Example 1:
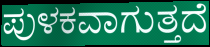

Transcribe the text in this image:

ಪುಳಕವಾಗುತ್ತದೆ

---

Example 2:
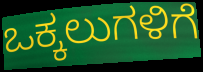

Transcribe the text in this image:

ಒಕ್ಕಲುಗಳಿಗೆ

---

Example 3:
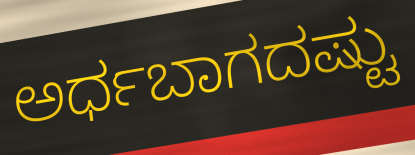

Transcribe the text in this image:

ಅರ್ಧಬಾಗದಷ್ಟು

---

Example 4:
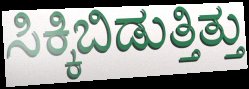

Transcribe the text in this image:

ಸಿಕ್ಕಿಬಿಡುತ್ತಿತ್ತು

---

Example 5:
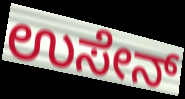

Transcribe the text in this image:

ಉಸೇನ್